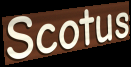
Scotus